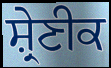
ਸ਼੍ਰੇਣੀਕ